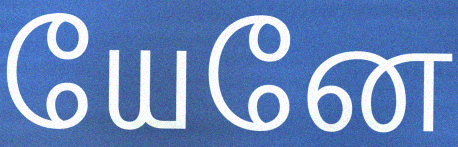
யேனே